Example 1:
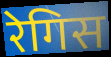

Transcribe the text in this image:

रेगिस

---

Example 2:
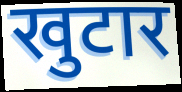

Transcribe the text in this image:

खुटार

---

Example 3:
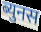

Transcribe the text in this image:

ब्युनस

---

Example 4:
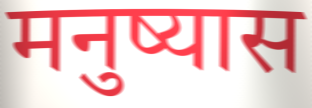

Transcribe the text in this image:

मनुष्यास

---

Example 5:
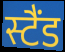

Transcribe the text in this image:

स्‍टैंड